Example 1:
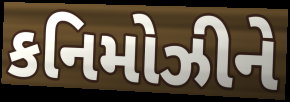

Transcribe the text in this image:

કનિમોઝીને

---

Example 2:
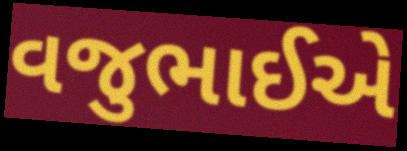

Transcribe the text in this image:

વજુભાઈએ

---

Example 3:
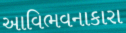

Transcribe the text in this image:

આવિભવનાકારા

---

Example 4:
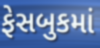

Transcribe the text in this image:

ફેસબુકમાં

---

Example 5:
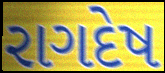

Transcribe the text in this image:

રાગદેષ